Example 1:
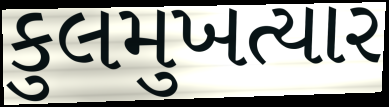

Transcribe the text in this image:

કુલમુખત્યાર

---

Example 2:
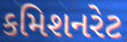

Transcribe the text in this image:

કમિશનરેટ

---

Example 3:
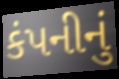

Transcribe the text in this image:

કંપનીનું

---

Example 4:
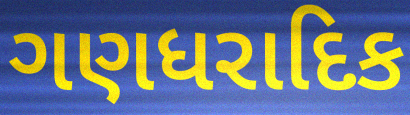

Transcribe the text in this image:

ગણધરાદિક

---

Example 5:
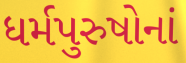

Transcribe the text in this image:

ધર્મપુરુષોનાં